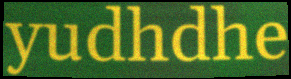
yudhdhe